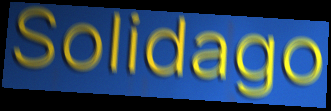
Solidago